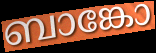
ബാങ്കോ